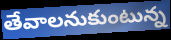
తేవాలనుకుంటున్న